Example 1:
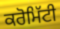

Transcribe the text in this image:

ਕਰੋਮਿੱਟੀ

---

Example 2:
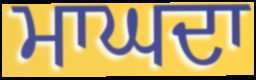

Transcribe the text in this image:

ਮਾਘਦਾ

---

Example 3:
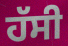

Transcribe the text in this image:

ਹੱਸੀ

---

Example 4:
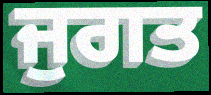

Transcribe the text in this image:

ਜੁਗਤ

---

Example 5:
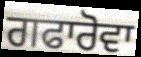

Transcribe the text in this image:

ਗਫਾਰੋਵਾ